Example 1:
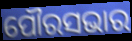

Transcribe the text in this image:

ପୌରସଭାର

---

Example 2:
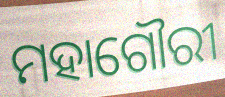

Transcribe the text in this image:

ମହାଗୌରୀ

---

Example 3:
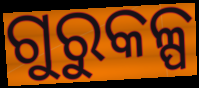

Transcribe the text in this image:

ଗୁରୁକଳ୍ପ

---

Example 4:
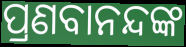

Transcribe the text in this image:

ପ୍ରଣବାନନ୍ଦଙ୍କ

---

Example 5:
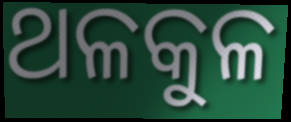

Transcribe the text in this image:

ଥଳକୁଳ